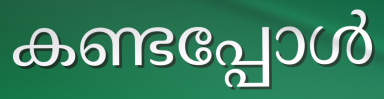
കണ്ടപ്പോൾ